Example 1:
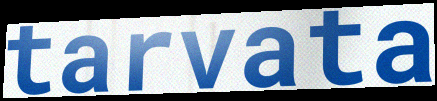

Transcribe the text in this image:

tarvata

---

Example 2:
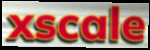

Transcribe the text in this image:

xscale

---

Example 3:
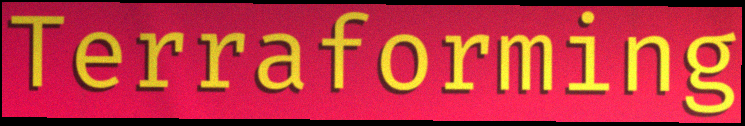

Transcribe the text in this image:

Terraforming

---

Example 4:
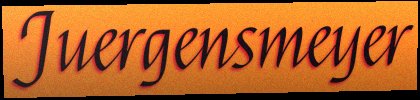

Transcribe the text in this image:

Juergensmeyer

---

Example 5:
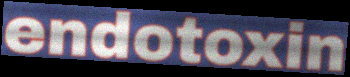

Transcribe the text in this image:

endotoxin